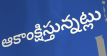
ఆకాంక్షిస్తున్నట్లు